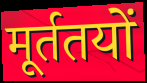
मूर्ततयों